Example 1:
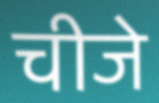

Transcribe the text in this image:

चीजे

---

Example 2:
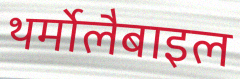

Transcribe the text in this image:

थर्मोलैबाइल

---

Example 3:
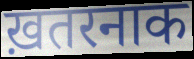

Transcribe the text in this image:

ख़तरनाक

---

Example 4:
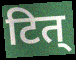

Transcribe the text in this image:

टित्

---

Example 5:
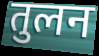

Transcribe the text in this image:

तुलन